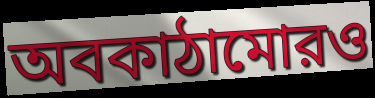
অবকাঠামোরও